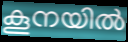
കൂനയിൽ